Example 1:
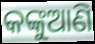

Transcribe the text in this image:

କଙ୍କୁଆଣି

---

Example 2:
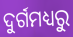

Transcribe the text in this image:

ଦୁର୍ଗମଧ୍ୟରୁ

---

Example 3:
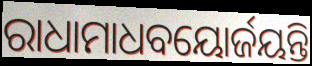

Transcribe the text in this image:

ରାଧାମାଧବୟୋର୍ଜୟନ୍ତି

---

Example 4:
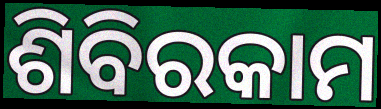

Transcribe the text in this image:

ଶିବିରକାମ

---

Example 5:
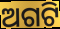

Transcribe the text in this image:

ଅଗଟି